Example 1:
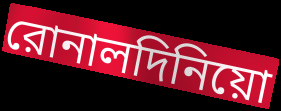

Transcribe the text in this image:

রোনালদিনিয়ো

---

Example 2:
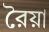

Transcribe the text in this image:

রৈয়া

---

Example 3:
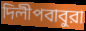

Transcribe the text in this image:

দিলীপবাবুরা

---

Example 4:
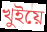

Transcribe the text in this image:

খুইয়ে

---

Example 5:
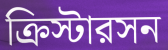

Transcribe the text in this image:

ক্রিস্টারসন